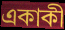
একাকী